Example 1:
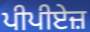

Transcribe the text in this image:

ਪੀਪੀਏਜ਼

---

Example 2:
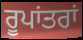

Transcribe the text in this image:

ਰੂਪਾਂਤਰਾਂ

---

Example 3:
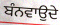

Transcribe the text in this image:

ਬੰਨਵਾਉਦੇ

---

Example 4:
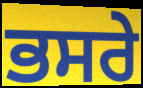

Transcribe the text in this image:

ਭਸਰੇ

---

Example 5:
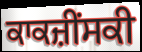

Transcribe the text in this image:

ਕਾਕਜ਼ੀੰਸਕੀ